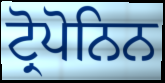
ਟ੍ਰੋਪੋਨਿਨ